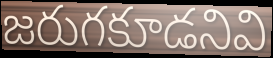
జరుగకూడనివి